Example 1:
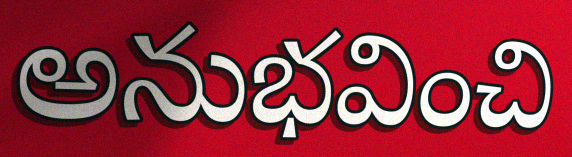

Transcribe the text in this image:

అనుభవించి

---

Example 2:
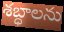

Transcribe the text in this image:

శబ్ధాలను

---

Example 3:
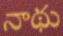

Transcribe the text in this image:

నాథు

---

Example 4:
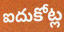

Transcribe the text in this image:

ఐదుకోట్ల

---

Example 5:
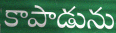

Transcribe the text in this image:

కాపాడును